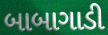
બાબાગાડી